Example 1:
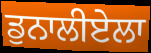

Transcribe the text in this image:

ਡੁਨਾਲੀਏਲਾ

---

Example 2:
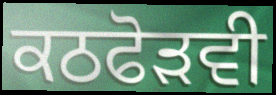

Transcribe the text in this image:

ਕਠਫੋੜਵੀ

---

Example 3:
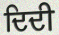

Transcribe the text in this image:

ਦਿਦੀ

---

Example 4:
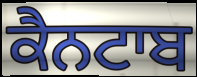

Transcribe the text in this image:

ਕੈਨਟਾਬ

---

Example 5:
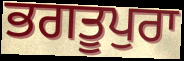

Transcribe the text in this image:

ਭਗਤੂਪੁਰਾ